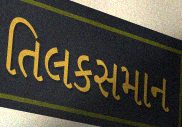
તિલકસમાન